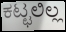
ಕಟ್ಟಲಿಲ್ಲ